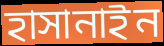
হাসানাইন